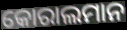
କୋରାଲମାନ